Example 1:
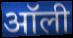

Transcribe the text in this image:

ऑली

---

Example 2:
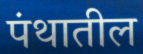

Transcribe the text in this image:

पंथातील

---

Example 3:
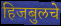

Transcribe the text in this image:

हिजबुलचे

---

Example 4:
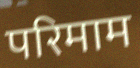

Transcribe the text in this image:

परिमाम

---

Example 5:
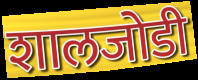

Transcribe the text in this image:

शालजोडी